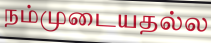
நம்முடையதல்ல